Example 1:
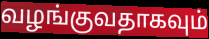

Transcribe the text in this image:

வழங்குவதாகவும்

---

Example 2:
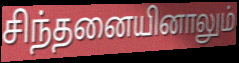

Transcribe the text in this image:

சிந்தனையினாலும்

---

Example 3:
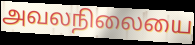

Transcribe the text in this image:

அவலநிலையை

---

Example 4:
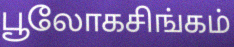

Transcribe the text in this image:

பூலோகசிங்கம்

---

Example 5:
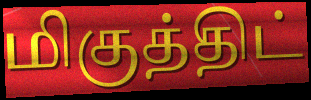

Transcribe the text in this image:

மிகுத்திட்